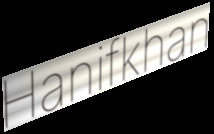
Hanifkhan